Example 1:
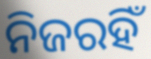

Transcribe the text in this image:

ନିଜରହିଁ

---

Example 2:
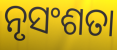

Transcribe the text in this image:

ନୃସଂଶତା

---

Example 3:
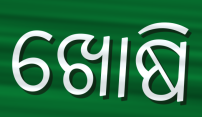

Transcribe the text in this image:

ଖୋଷି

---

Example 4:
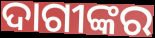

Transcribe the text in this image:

ଦାଗୀଙ୍କର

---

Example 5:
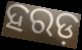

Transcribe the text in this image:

ହରଡ଼